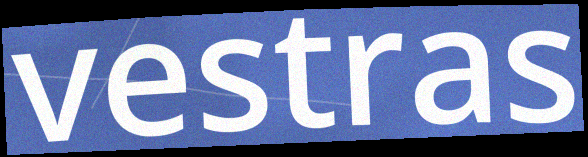
vestras